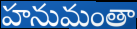
హనుమంతా